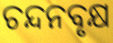
ଚନ୍ଦନବୃକ୍ଷ